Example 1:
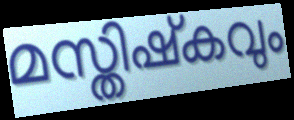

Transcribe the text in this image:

മസ്തിഷ്കവും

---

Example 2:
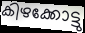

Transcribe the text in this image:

കിഴക്കോട്ടു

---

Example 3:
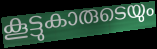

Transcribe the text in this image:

കൂട്ടുകാരുടെയും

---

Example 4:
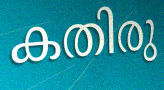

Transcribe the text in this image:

കതിരു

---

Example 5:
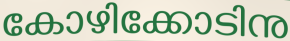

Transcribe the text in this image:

കോഴിക്കോടിനു